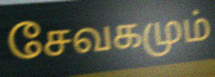
சேவகமும்